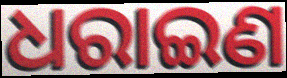
ଧରାଇଣ